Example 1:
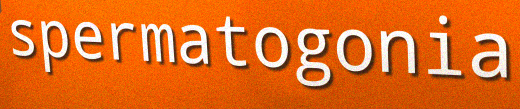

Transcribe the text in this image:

spermatogonia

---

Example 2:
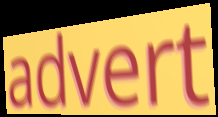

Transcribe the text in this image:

advert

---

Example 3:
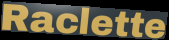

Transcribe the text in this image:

Raclette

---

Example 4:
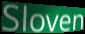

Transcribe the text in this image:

Sloven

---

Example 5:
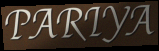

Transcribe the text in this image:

PARIYA